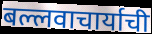
बल्लवाचार्याची